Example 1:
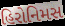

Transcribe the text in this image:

હિરોનિમસ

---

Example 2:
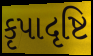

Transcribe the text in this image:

કૃપાદૃષ્ટિ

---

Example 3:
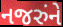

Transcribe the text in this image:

નજરુંને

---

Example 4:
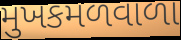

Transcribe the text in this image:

મુખકમળવાળા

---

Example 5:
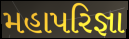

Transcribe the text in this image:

મહાપરિજ્ઞા